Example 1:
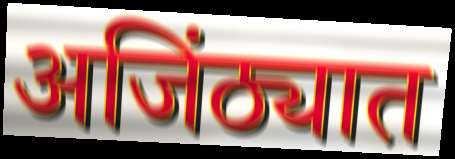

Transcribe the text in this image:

अजिंठ्यात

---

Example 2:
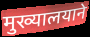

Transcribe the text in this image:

मुख्यालयाने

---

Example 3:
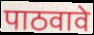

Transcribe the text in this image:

पाठवावे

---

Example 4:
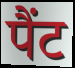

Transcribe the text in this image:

पैंट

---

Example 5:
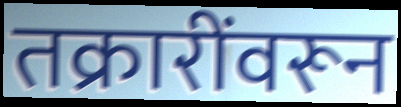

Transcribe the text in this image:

तक्रारींवरून